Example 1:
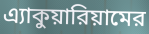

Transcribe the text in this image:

এ্যাকুয়ারিয়ামের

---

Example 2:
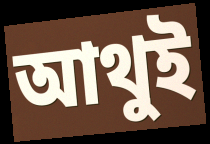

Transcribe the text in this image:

আথুই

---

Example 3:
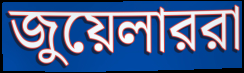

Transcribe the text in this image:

জুয়েলাররা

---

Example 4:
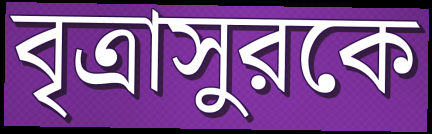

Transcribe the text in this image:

বৃত্রাসুরকে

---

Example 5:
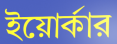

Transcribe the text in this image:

ইয়োর্কার